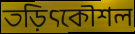
তড়িৎকৌশল